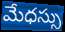
మేధస్సు